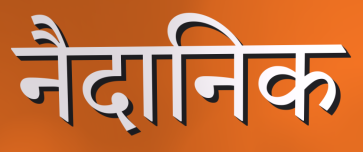
नैदानिक